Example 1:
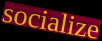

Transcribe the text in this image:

socialize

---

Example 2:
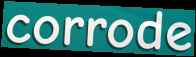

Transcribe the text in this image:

corrode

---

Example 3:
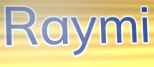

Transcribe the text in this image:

Raymi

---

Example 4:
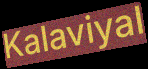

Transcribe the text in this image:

Kalaviyal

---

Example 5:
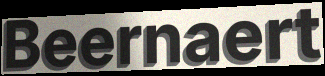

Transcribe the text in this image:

Beernaert